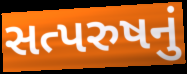
સત્પરુષનું